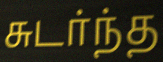
சுடர்ந்த